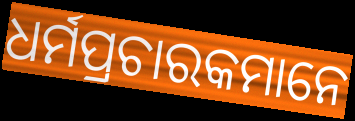
ଧର୍ମପ୍ରଚାରକମାନେ